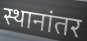
स्थानांतर